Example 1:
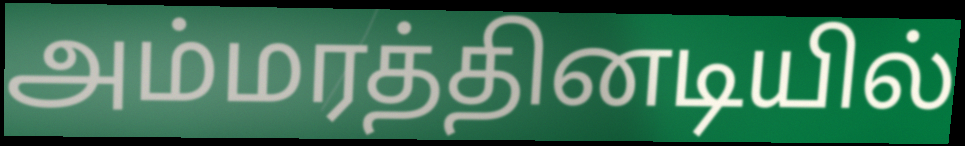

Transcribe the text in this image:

அம்மரத்தினடியில்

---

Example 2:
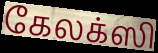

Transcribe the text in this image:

கேலக்ஸி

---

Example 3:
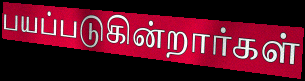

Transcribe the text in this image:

பயப்படுகின்றார்கள்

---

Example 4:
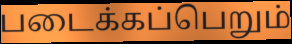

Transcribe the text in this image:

படைக்கப்பெறும்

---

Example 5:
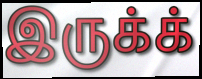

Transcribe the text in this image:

இருக்க்